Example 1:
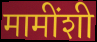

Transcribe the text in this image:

मामींशी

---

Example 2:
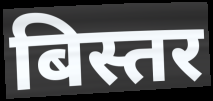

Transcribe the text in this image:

बिस्तर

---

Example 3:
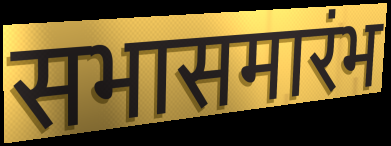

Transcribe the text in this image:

सभासमारंभ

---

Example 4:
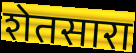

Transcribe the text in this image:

शेतसारा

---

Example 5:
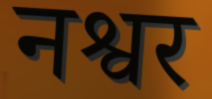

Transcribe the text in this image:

नश्वर